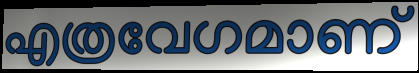
എത്രവേഗമാണ്